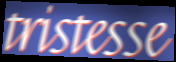
tristesse